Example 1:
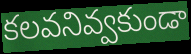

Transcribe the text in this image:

కలవనివ్వకుండా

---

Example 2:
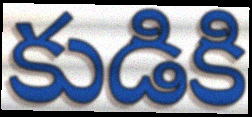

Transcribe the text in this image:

కుడికి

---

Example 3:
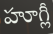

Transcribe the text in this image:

హూగ్లీ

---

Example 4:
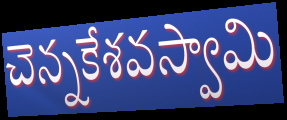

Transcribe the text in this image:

చెన్నకేశవస్వామి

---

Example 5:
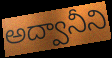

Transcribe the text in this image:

అద్వానీని